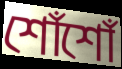
শোঁশোঁ